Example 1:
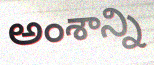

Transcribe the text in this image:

అంశాన్ని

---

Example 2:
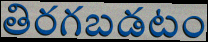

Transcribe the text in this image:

తిరగబడటం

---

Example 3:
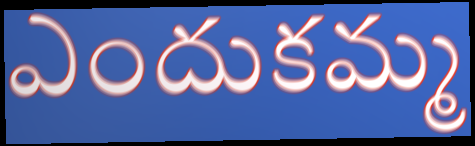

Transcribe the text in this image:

ఎందుకమ్మ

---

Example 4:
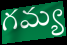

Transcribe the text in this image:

గమ్య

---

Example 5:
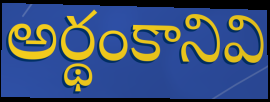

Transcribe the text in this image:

అర్థంకానివి